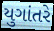
યુગાંતરે